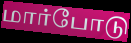
மார்போடு